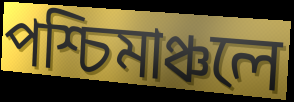
পশ্চিমাঞ্চলে